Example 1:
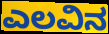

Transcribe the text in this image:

ಎಲವಿನ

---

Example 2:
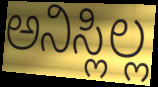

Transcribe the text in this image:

ಅನಿಸ್ಲಿಲ್ಲ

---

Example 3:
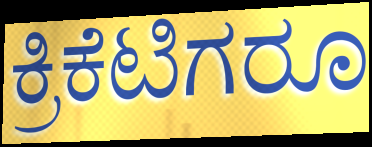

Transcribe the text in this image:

ಕ್ರಿಕೆಟಿಗರೂ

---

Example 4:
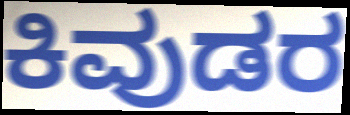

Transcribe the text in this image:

ಕಿವುಡರ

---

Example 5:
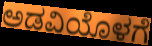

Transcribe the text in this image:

ಅಡವಿಯೊಳಗೆ